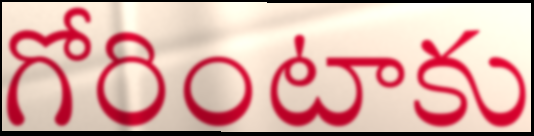
గోరింటాకు